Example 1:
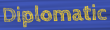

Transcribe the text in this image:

Diplomatic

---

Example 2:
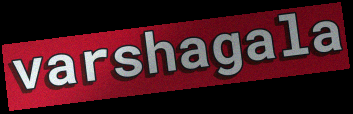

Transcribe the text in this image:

varshagala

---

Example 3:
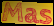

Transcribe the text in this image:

Mas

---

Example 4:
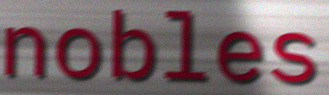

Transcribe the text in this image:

nobles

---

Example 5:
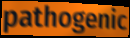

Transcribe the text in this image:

pathogenic